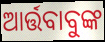
ଆର୍ତ୍ତବାବୁଙ୍କ